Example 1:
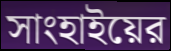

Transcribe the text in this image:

সাংহাইয়ের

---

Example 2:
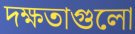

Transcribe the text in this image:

দক্ষতাগুলো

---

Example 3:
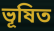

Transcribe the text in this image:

ভূষিত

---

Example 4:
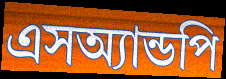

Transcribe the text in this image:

এসঅ্যান্ডপি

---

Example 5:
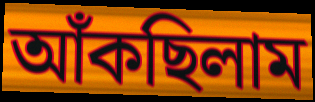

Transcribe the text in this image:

আঁকছিলাম